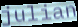
julian